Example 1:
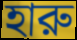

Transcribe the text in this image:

হারু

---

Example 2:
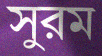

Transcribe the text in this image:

সুরম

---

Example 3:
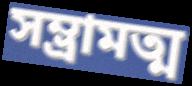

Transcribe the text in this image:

সম্ভ্রামত্ম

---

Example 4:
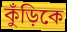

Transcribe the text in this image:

কুঁড়িকে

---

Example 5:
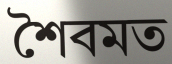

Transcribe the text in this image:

শৈবমত